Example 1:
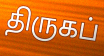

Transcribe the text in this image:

திருகப்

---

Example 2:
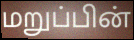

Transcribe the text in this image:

மறுப்பின்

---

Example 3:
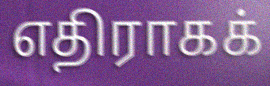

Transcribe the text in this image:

எதிராகக்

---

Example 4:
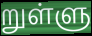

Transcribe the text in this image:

றுள்ளு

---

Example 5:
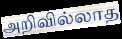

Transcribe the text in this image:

அறிவில்லாத